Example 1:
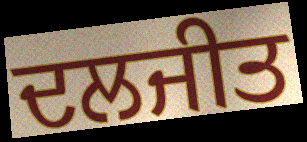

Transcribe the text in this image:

ਦਲਜੀਤ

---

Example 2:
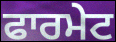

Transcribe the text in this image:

ਫਾਰਮੇਟ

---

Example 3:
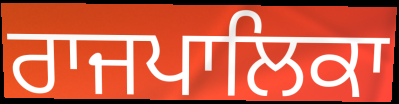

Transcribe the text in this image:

ਰਾਜਪਾਲਿਕਾ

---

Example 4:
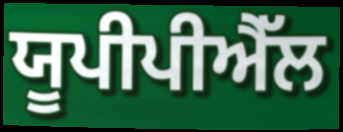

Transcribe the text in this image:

ਯੂਪੀਪੀਐੱਲ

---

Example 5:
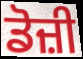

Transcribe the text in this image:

ਡੋਜ਼ੀ